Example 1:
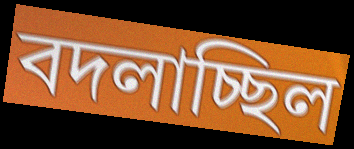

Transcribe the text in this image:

বদলাচ্ছিল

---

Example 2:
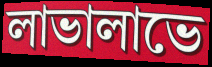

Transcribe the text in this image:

লাভালাভে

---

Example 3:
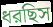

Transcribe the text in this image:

ধরছিস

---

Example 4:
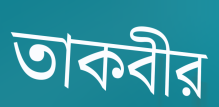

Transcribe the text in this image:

তাকবীর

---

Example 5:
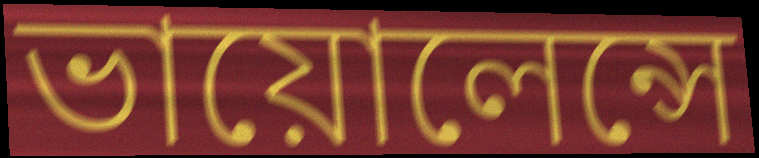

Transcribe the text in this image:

ভায়োলেন্সে